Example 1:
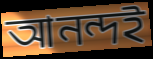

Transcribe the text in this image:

আনন্দই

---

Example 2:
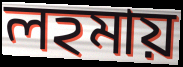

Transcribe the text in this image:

লহমায়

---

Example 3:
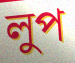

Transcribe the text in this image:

লুপ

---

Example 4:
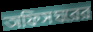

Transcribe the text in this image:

অফিসঘরের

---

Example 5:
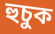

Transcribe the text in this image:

হুচুক